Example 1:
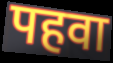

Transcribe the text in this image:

पहवा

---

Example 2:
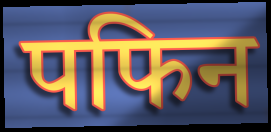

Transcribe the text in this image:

पफिन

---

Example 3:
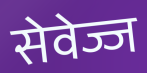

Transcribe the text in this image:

सेवेज्ज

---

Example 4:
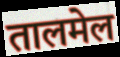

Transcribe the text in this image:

तालमेल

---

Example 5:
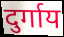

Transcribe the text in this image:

दुर्गाय